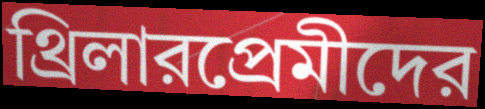
থ্রিলারপ্রেমীদের